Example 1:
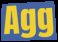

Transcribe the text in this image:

Agg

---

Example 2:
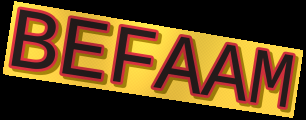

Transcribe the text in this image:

BEFAAM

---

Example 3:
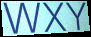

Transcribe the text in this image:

WXY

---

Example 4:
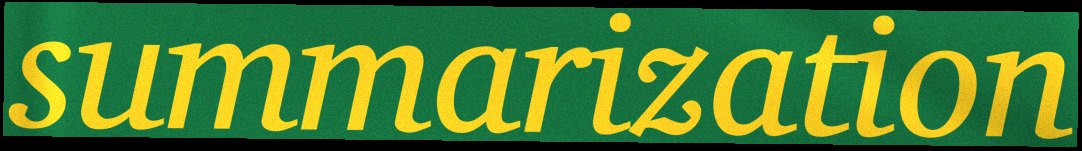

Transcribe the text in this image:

summarization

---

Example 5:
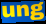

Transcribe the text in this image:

ung